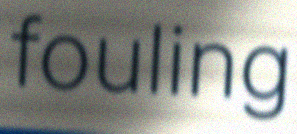
fouling